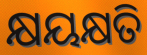
କ୍ଷୟକ୍ଷତି